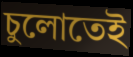
চুলোতেই